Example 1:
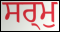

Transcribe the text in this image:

ਸਰ੍ਮੁ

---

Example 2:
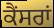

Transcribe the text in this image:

ਕੈਂਸਰਾਂ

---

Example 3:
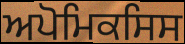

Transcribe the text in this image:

ਅਪੋਮਿਕਸਿਸ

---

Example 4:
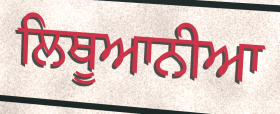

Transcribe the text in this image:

ਲਿਥੂਆਨੀਆ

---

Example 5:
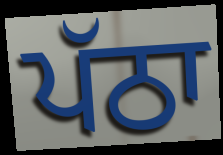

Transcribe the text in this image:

ਪੱਠਾ